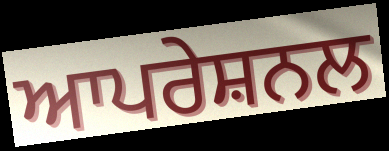
ਆਪਰੇਸ਼ਨਲ